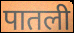
पातली